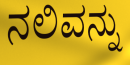
ನಲಿವನ್ನು